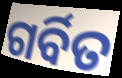
ଗର୍ବିତ